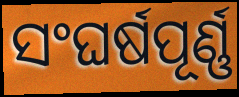
ସଂଘର୍ଷପୂର୍ଣ୍ଣ